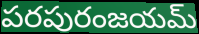
పరపురంజయమ్